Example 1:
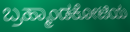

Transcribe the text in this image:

ಬ್ರಹ್ಮಾಂಡಕೋಟಿಯ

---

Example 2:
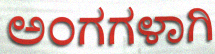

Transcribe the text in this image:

ಅಂಗಗಳಾಗಿ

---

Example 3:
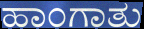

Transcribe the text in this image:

ಹಾಂಗಾತು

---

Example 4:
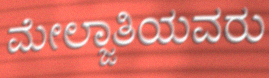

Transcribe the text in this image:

ಮೇಲ್ಜಾತಿಯವರು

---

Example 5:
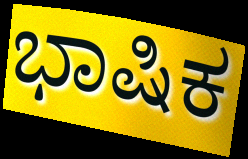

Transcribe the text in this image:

ಭಾಷಿಕ